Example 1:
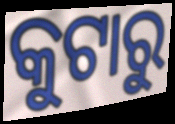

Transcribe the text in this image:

କୁଟାରୁ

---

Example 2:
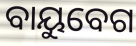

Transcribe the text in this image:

ବାୟୁବେଗ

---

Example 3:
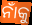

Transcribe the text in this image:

ନାଁକୁ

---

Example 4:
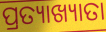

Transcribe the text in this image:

ପ୍ରତ୍ୟାଖ୍ୟାତା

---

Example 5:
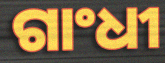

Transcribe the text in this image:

ଗାଂଧୀ